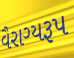
વૈરાગ્યરૂપ